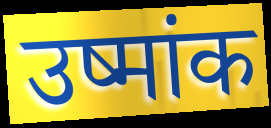
उष्मांक